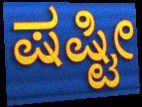
ಷಷ್ಟೀ